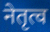
नेतृत्व